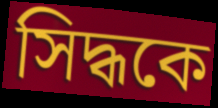
সিদ্ধকে